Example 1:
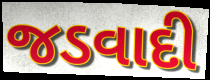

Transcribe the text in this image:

જડવાદી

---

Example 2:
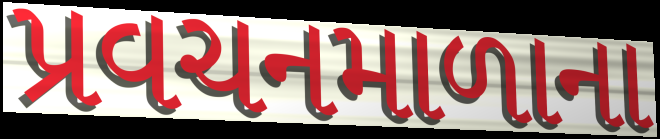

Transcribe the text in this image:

પ્રવચનમાળાના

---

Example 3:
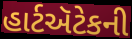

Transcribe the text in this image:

હાર્ટઍટેકની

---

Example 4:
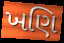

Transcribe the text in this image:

ખણિ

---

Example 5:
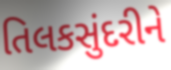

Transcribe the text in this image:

તિલકસુંદરીને